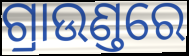
ଗ୍ରାଉଣ୍ଡରେ